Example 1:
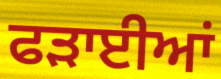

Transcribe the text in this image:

ਫੜਾਈਆਂ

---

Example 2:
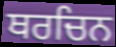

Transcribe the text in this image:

ਥਰਚਿਨ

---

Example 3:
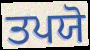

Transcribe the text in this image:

ਤਪਯੋ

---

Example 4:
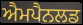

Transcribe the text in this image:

ਐਮਪੈਨਲਡ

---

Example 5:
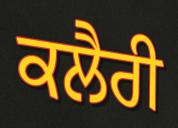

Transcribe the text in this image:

ਕਲੈਰੀ